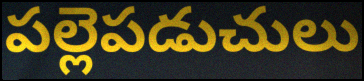
పల్లెపడుచులు